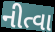
નીત્વા